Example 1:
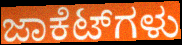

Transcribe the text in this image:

ಜಾಕೆಟ್‌ಗಳು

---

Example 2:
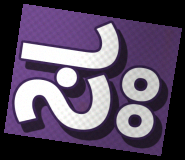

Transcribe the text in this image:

ಸಃ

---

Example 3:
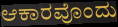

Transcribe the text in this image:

ಆಕಾರವೊಂದು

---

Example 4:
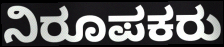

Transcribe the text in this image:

ನಿರೂಪಕರು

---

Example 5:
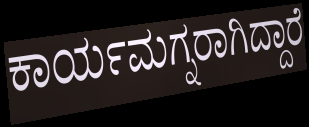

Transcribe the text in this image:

ಕಾರ್ಯಮಗ್ನರಾಗಿದ್ದಾರೆ